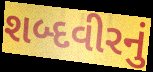
શબ્દવીરનું